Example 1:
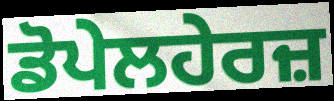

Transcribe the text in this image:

ਡੋਪੇਲਹੇਰਜ਼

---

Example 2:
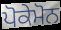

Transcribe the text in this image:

ਪੋਕੇਮੋਨ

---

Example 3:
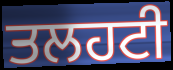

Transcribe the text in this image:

ਤਲਹਟੀ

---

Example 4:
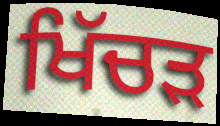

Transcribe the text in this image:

ਖਿੱਚੜ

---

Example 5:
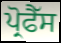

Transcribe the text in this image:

ਪ੍ਰੋਫੈੱਸ